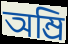
অম্রি